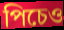
পিচেও